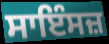
ਸਾਇੰਸਜ਼